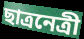
ছাত্রনেত্রী